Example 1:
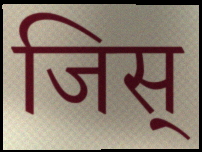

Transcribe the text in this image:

जिस्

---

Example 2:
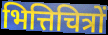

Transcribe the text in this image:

भित्तिचित्रों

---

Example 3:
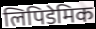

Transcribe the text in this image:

लिपिडेमिक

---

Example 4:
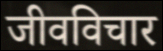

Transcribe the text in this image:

जीवविचार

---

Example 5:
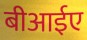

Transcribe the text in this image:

बीआईए